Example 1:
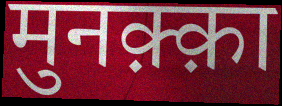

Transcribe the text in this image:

मुनक़्क़ा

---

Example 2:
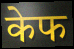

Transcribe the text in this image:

केफ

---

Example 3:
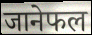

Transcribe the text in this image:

जानेफल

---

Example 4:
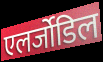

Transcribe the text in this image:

एलर्जोडिल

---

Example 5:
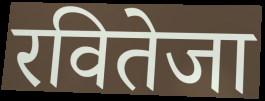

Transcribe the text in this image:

रवितेजा